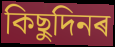
কিছুদিনৰ